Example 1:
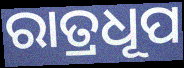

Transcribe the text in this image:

ରାତ୍ରଧୂପ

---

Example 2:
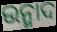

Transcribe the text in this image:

ଉନ୍ମାଦ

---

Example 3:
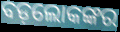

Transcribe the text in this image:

ବଡ଼ଲୋକଙ୍କର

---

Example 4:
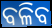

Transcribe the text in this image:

ବଳିବ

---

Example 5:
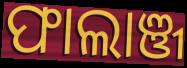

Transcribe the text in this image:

ଫାଲାଞ୍ଜ